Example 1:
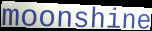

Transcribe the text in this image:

moonshine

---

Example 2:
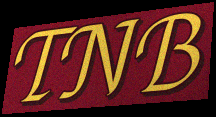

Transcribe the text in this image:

TNB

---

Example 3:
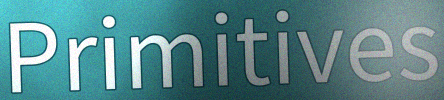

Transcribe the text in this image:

Primitives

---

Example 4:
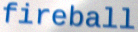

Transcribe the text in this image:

fireball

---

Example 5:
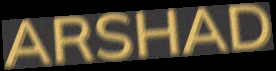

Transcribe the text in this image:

ARSHAD